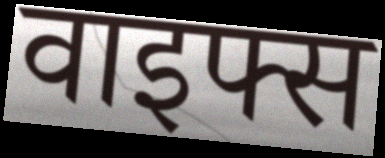
वाइफ्स